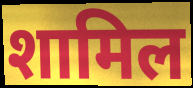
शामिल